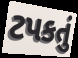
ટપકતું